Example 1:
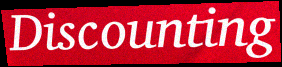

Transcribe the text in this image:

Discounting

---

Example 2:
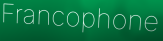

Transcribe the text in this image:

Francophone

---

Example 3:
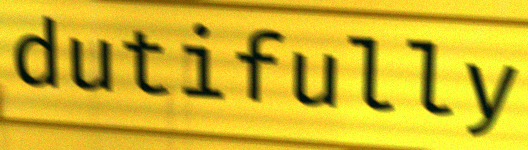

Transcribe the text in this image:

dutifully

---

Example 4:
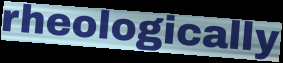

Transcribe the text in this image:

rheologically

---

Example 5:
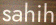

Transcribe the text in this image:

sahih